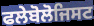
ਫਲੇਬੋਲੋਜਿਸਟ